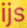
ijs